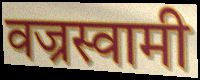
वज्रस्वामी